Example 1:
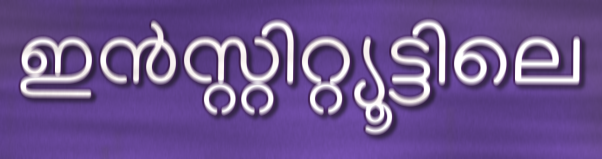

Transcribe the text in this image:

ഇൻസ്റ്റിറ്റ്യൂട്ടിലെ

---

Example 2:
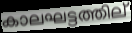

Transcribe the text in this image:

കാലഘട്ടത്തില്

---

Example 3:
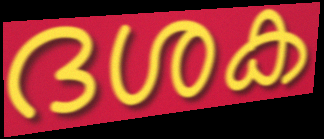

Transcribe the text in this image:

ദശക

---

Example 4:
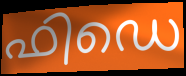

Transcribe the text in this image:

ഫിഡെ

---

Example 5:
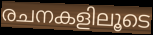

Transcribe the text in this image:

രചനകളിലൂടെ